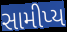
સામીપ્ય